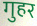
गुहर